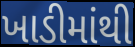
ખાડીમાંથી